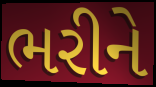
ભરીને